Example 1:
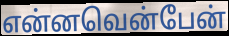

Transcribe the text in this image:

என்னவென்பேன்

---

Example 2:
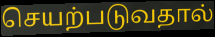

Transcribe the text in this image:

செயற்படுவதால்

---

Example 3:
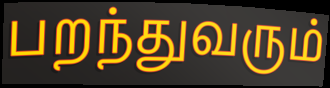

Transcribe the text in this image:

பறந்துவரும்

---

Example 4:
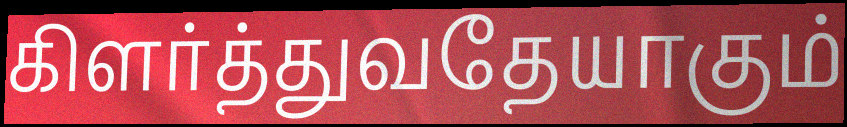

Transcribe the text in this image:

கிளர்த்துவதேயாகும்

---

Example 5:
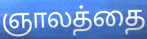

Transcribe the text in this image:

ஞாலத்தை